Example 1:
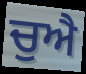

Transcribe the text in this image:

ਚੁਐ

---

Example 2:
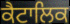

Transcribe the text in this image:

ਕੈਟਾਲਿਕ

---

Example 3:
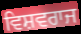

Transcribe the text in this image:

ਵਿਸ਼ਵਰਾਜ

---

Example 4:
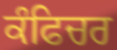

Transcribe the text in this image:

ਕੰਫਿਚਰ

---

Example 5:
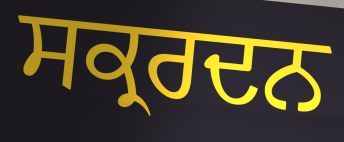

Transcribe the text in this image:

ਸਕ੍ਰਰਦਨ